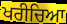
ਖਰੀਚਿਆ